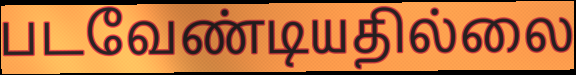
படவேண்டியதில்லை